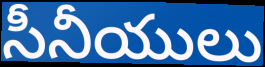
సీనీయులు